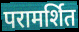
परामर्शित